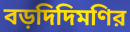
বড়দিদিমণির